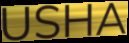
USHA